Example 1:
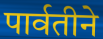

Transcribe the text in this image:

पार्वतीने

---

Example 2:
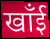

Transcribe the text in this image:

खाँई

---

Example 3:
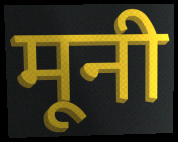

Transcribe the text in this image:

मूनी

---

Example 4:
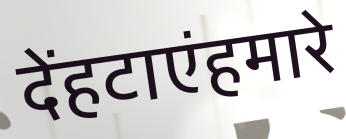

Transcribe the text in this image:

देंहटाएंहमारे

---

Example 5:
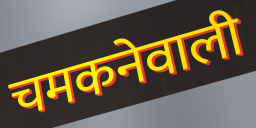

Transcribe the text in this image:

चमकनेवाली